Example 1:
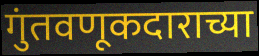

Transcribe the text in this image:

गुंतवणूकदाराच्या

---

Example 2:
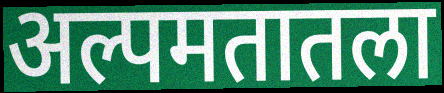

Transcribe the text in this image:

अल्पमतातला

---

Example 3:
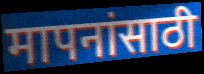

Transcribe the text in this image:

मापनांसाठी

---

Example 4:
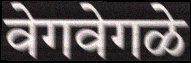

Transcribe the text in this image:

वेगवेगळे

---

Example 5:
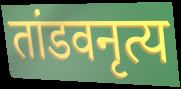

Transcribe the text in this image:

तांडवनृत्य